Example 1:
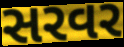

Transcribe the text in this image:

સરવર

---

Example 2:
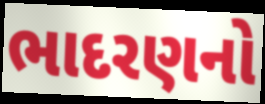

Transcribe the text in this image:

ભાદરણનો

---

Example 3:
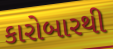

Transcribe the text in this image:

કારોબારથી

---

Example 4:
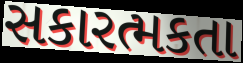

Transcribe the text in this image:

સકારત્મકતા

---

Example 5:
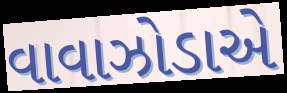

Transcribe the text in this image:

વાવાઝોડાએ